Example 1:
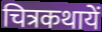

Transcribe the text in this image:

चित्रकथायें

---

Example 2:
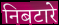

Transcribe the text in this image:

निबटारे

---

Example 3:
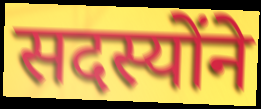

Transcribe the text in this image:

सदस्योंने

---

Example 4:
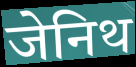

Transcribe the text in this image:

जेनिथ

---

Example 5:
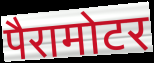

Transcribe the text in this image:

पैरामोटर